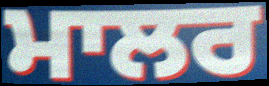
ਮਾਲਰ